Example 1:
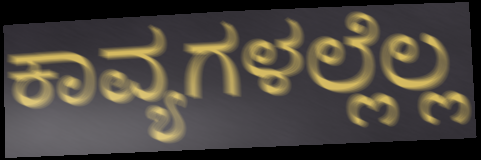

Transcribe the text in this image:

ಕಾವ್ಯಗಳಲ್ಲೆಲ್ಲ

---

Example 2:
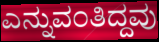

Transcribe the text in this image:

ಎನ್ನುವಂತಿದ್ದವು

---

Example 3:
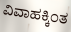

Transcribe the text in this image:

ವಿವಾಹಕ್ಕಿಂತ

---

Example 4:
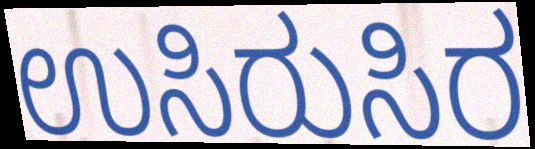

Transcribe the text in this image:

ಉಸಿರುಸಿರ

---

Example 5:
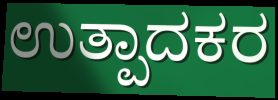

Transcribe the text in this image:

ಉತ್ಪಾದಕರ